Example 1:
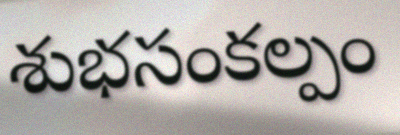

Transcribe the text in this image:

శుభసంకల్పం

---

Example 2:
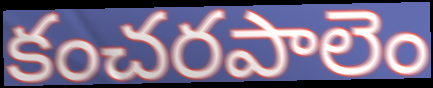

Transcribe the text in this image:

కంచరపాలెం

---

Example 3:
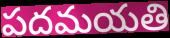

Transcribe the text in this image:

పదమయతి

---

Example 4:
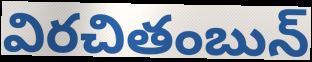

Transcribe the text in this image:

విరచితంబున్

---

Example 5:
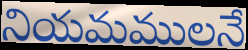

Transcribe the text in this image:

నియమములనే